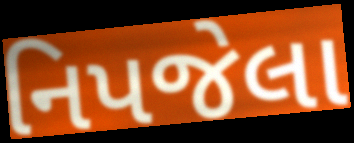
નિપજેલા